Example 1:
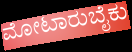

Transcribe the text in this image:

ಮೋಟಾರುಬೈಕು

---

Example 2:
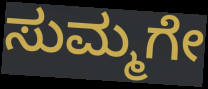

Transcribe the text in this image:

ಸುಮ್ಮಗೇ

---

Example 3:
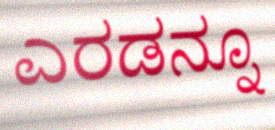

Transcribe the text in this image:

ಎರಡನ್ನೂ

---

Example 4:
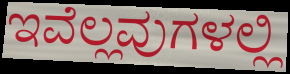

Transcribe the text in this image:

ಇವೆಲ್ಲವುಗಳಲ್ಲಿ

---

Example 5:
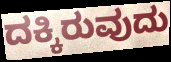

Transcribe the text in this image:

ದಕ್ಕಿರುವುದು